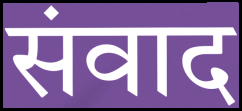
संवाद